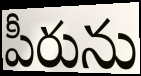
పీరును